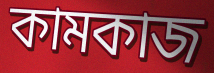
কামকাজ